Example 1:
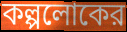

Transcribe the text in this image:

কল্পলোকের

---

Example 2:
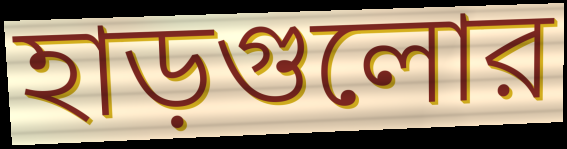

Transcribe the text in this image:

হাড়গুলোর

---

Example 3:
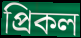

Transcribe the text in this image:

প্রিকল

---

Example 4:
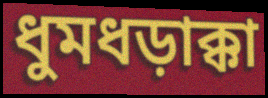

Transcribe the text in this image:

ধুমধড়াক্কা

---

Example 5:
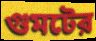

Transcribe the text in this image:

গুমটের